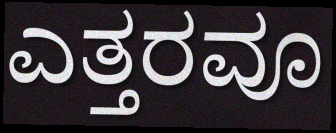
ಎತ್ತರವೂ